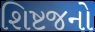
શિષ્ટજનો